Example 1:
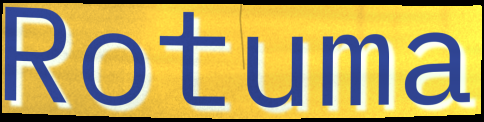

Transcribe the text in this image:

Rotuma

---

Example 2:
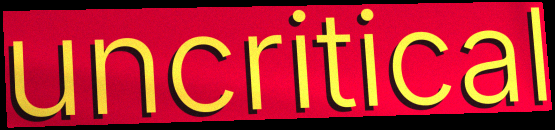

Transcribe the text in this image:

uncritical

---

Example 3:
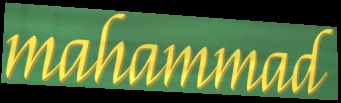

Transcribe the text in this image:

mahammad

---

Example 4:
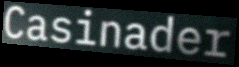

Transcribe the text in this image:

Casinader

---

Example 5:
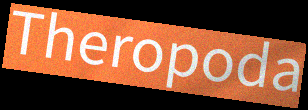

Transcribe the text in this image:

Theropoda